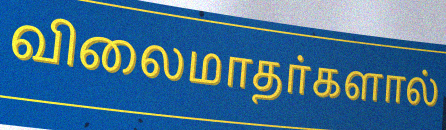
விலைமாதர்களால்